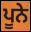
ਪੂਨੇ